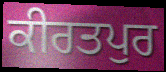
ਕੀਰਤਪੁਰ